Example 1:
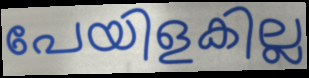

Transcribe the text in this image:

പേയിളകില്ല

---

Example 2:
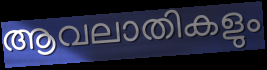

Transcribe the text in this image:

ആവലാതികളും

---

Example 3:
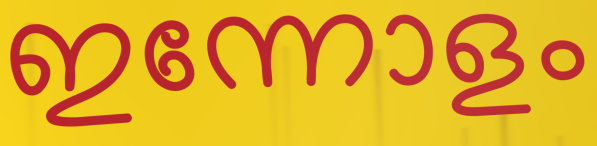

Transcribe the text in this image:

ഇന്നോളം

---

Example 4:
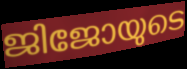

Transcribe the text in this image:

ജിജോയുടെ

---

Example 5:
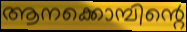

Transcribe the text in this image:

ആനക്കൊമ്പിന്റെ